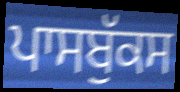
ਪਾਸਬੁੱਕਸ